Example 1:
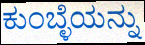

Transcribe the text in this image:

ಕುಂಬ್ಳೆಯನ್ನು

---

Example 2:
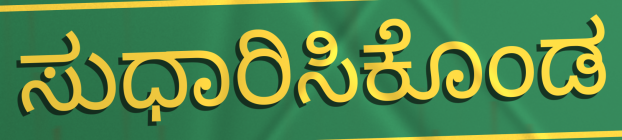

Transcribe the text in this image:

ಸುಧಾರಿಸಿಕೊಂಡ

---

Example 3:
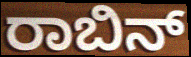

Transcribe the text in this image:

ರಾಬಿನ್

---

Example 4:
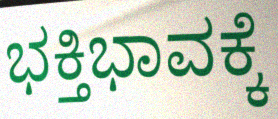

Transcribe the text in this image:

ಭಕ್ತಿಭಾವಕ್ಕೆ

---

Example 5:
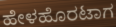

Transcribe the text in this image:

ಹೇಳಹೊರಟಾಗ